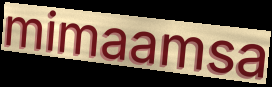
mimaamsa